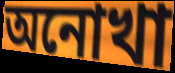
অনোখা